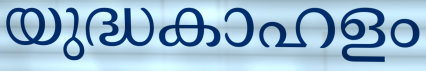
യുദ്ധകാഹളം